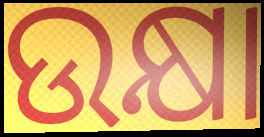
ଉକ୍ଷା